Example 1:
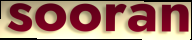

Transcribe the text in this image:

sooran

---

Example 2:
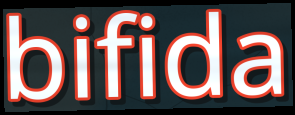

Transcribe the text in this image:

bifida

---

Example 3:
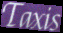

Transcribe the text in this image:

Taxis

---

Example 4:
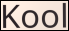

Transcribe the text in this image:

Kool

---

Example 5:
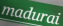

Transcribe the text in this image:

madurai